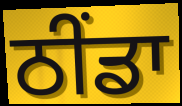
ਠੀਂਡਾ